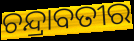
ଚନ୍ଦ୍ରାବତୀର